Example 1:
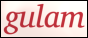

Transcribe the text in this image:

gulam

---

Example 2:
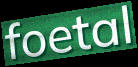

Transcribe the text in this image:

foetal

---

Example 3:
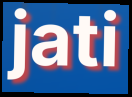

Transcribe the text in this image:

jati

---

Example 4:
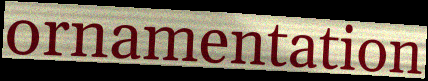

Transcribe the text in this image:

ornamentation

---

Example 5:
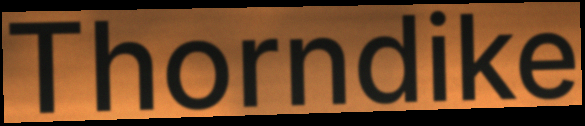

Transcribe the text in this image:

Thorndike